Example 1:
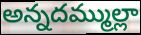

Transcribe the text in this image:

అన్నదమ్ముల్లా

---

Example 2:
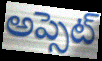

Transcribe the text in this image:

అప్సెట్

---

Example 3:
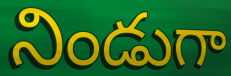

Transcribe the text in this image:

నిండుగా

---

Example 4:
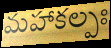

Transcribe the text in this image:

మహాకల్పః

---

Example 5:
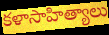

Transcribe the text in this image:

కళాసాహిత్యాలు